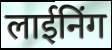
लाईनिंग